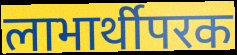
लाभार्थीपरक